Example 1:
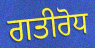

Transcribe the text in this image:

ਗਤੀਰੋਧ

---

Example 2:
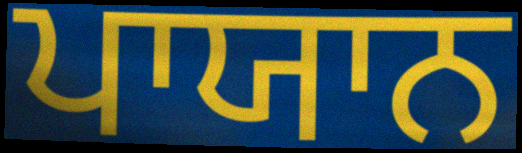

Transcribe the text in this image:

ਪਾਯਾਨ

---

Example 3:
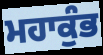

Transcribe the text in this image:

ਮਹਾਕੁੰਭ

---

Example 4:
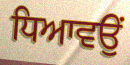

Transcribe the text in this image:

ਧਿਆਵਉਂ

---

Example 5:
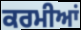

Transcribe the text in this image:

ਕਰਮੀਆਂ